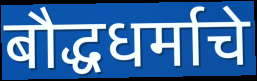
बौद्धधर्माचे